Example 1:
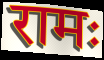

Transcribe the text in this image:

रामः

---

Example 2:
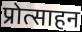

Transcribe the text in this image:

प्रोत्साहन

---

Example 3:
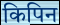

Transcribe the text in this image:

किपिन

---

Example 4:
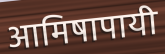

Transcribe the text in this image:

आमिषापायी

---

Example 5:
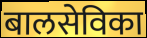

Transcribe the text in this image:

बालसेविका